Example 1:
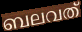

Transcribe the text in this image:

ബലവത്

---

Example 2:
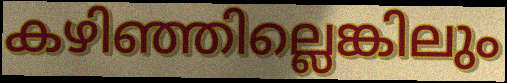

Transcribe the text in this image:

കഴിഞ്ഞില്ലെങ്കിലും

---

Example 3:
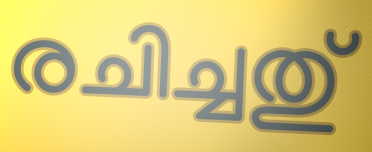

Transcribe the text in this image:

രചിച്ചതു്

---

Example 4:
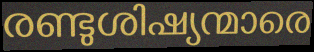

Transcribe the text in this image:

രണ്ടുശിഷ്യന്മാരെ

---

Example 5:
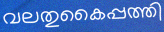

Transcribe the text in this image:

വലതുകൈപ്പത്തി